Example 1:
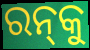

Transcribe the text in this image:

ରନ୍‌କୁ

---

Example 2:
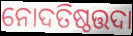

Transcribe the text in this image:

ନୋଦତିଷ୍ଠତ୍ତଦା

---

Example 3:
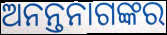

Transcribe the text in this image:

ଅନନ୍ତନାଗଙ୍କର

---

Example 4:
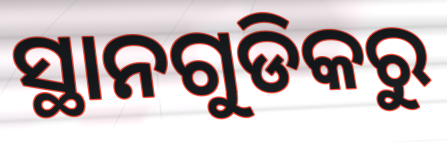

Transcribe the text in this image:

ସ୍ଥାନଗୁଡିକରୁ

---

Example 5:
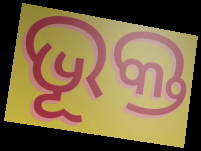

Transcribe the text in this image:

ଭୂକ୍ତ